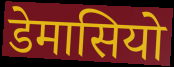
डेमासियो